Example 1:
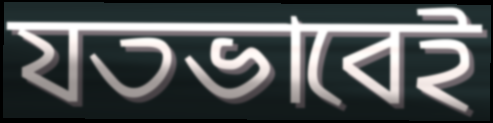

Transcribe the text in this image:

যতভাবেই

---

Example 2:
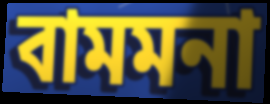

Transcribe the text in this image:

বামমনা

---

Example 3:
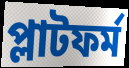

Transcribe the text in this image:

প্লাটফর্ম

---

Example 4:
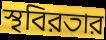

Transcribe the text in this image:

স্থবিরতার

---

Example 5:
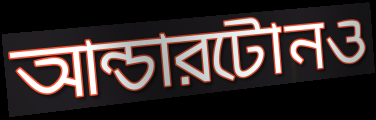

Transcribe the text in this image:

আন্ডারটোনও